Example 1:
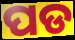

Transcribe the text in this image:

ପଡ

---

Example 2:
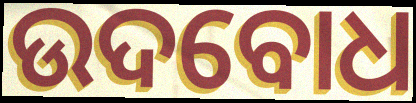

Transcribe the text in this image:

ଉଦବୋଧ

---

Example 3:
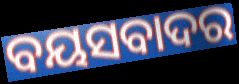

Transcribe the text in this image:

ବୟସବାଦର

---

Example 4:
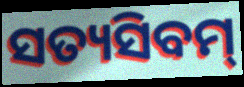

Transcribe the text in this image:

ସତ୍ୟସିବମ୍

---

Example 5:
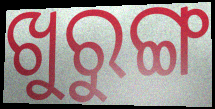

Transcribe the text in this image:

ଖୁରୁଙ୍ଗ